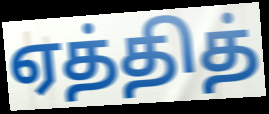
ஏத்தித்